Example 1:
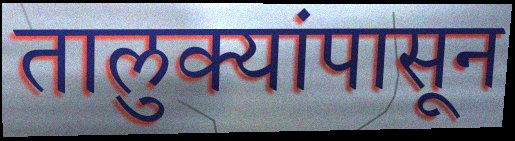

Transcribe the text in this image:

तालुक्यांपासून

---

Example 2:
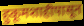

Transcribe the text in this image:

हुकूमशाहीपासून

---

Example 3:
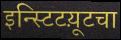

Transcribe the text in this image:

इन्स्टिटय़ूटचा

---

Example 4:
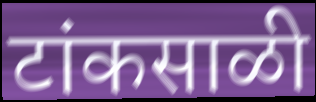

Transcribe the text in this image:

टांकसाळी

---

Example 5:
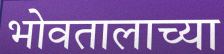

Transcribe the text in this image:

भोवतालाच्या